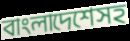
বাংলাদেশেসহ